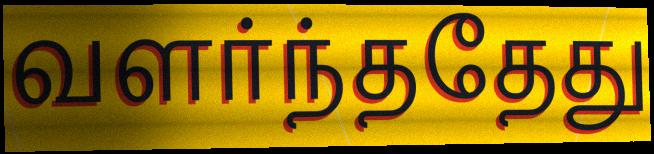
வளர்ந்ததேது